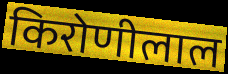
किरोणीलाल